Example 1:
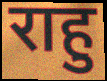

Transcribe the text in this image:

राहु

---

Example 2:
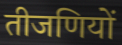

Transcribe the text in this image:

तीजणियों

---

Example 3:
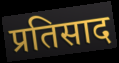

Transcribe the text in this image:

प्रतिसाद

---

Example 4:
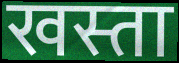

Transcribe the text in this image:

खस्ता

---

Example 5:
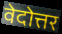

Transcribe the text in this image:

वेदोत्तर